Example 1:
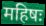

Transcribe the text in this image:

महिषः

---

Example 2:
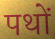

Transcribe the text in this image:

पथों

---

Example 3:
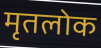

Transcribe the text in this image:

मृतलोक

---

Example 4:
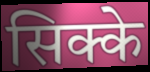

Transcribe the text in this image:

सिक्के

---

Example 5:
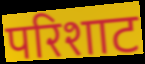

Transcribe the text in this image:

परिशाट